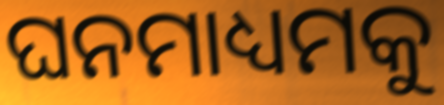
ଘନମାଧ୍ୟମକୁ